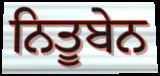
ਨਿਤੂਬੇਨ